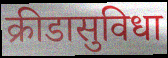
क्रीडासुविधा